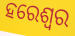
ହରେଶ୍ୱର